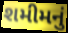
શમીમનું